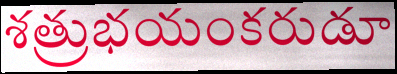
శత్రుభయంకరుడూ